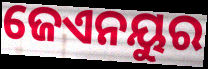
ଜେଏନୟୁର